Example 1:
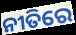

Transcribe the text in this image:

ନୀତିରେ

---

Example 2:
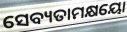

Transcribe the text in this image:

ସେବ୍ୟତାମକ୍ଷୟୋ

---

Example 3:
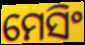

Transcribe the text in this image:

ମେସିଂ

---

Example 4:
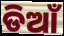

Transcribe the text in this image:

ଡିଆଁ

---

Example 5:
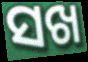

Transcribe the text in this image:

ସଖ